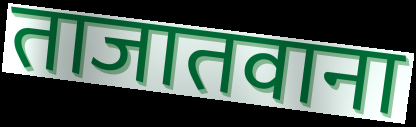
ताजातवाना